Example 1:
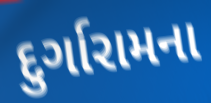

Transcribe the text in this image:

દુર્ગારામના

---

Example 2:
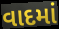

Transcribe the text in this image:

વાદમાં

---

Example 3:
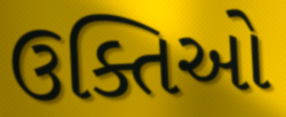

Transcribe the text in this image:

ઉક્તિઓ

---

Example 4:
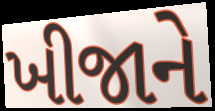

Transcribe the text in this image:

ખીજાને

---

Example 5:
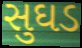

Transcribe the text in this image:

સુઘડ